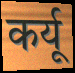
कर्यू